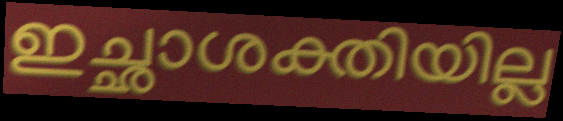
ഇച്ഛാശക്തിയില്ല